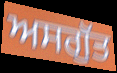
ਅਸਗੁੱਤ